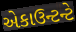
એકાઉન્ટન્ટે